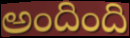
అందింది